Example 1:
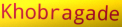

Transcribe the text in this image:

Khobragade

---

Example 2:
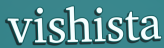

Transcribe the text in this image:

vishista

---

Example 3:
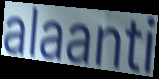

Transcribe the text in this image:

alaanti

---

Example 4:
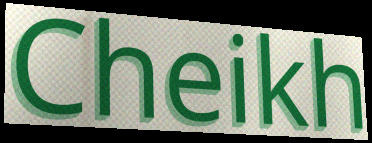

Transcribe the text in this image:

Cheikh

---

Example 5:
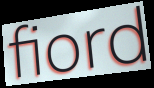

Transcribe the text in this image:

fiord